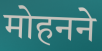
मोहनने